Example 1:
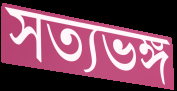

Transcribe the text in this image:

সত্যভঙ্গ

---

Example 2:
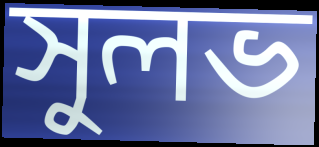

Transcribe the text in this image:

সুলভ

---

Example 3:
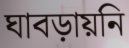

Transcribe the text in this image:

ঘাবড়ায়নি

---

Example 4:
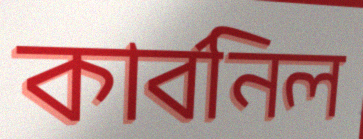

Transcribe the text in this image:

কার্বনিল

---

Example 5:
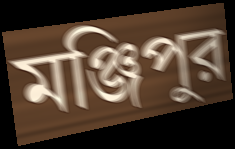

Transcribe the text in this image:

মঞ্জিপুর